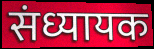
संध्यायक